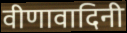
वीणावादिनी